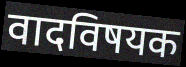
वादविषयक